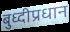
बुध्दीप्रधान